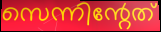
സെന്നിന്റേത്